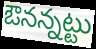
ఔనన్నట్టు